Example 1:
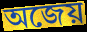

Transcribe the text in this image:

অজেয়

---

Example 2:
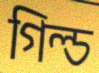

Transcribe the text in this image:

গিল্ড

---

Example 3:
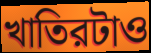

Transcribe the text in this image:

খাতিরটাও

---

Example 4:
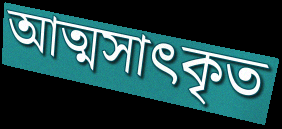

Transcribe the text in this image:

আত্মসাৎকৃত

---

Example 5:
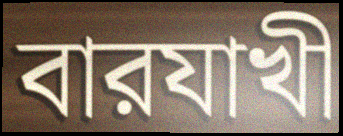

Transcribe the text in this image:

বারযাখী